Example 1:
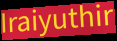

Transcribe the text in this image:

Iraiyuthir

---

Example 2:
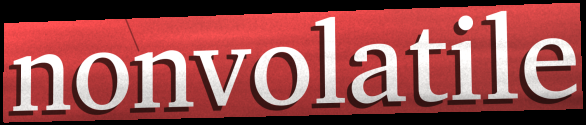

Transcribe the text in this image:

nonvolatile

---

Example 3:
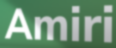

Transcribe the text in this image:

Amiri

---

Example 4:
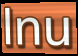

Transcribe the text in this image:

Inu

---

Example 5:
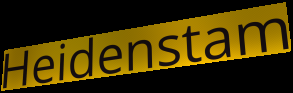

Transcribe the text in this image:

Heidenstam